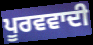
ਪੂਰਵਵਾਦੀ